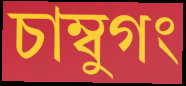
চাম্বুগং